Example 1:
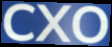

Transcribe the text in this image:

CXO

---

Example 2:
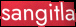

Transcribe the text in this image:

sangitla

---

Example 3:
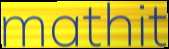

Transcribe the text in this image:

mathit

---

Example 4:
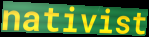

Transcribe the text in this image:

nativist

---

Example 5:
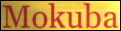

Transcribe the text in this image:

Mokuba